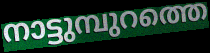
നാട്ടുമ്പുറത്തെ